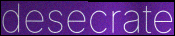
desecrate